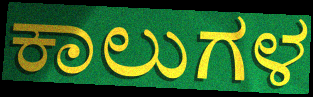
ಕಾಲುಗಳ